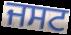
ਜਸਟ